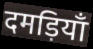
दमड़ियाँ